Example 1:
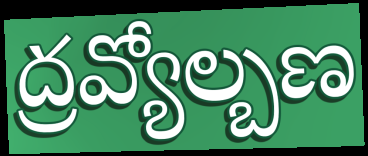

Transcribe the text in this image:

ద్రవ్యోల్బణ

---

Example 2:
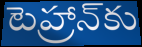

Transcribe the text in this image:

టెహ్రాన్‌కు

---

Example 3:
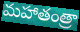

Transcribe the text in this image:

మహాతంత్రా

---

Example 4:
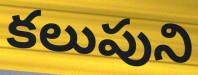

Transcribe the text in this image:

కలుపుని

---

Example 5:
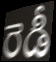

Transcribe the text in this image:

రెడీ